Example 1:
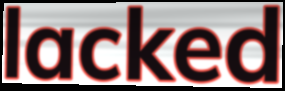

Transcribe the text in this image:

lacked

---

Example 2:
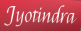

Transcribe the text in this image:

Jyotindra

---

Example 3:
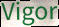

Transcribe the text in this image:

Vigor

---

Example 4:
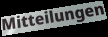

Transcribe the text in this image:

Mitteilungen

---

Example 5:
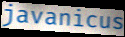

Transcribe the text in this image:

javanicus